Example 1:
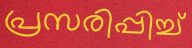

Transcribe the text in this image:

പ്രസരിപ്പിച്ച്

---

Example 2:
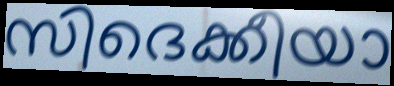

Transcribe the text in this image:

സിദെക്കീയാ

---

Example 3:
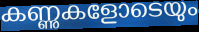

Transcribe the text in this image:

കണ്ണുകളോടെയും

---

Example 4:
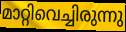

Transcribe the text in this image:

മാറ്റിവെച്ചിരുന്നു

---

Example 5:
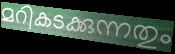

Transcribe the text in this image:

മറികടക്കുന്നതും